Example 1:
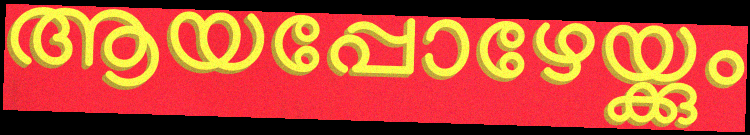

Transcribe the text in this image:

ആയപ്പോഴേയ്ക്കും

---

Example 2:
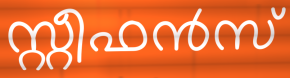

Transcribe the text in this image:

സ്റ്റീഫൻസ്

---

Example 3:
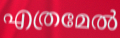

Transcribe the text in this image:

എത്രമേൽ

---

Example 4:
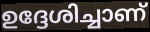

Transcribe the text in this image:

ഉദ്ദേശിച്ചാണ്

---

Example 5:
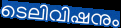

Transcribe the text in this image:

ടെലിവിഷനും